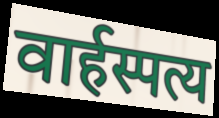
वार्हस्पत्य